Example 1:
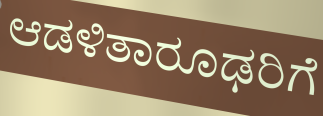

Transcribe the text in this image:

ಆಡಳಿತಾರೂಢರಿಗೆ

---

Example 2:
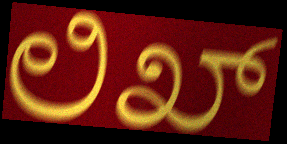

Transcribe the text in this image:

ಲಿಖ್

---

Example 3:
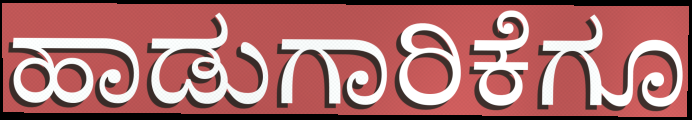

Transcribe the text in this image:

ಹಾಡುಗಾರಿಕೆಗೂ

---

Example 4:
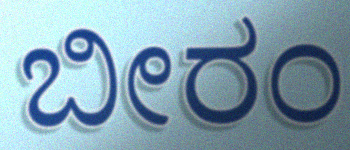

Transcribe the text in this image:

ಬೀರಂ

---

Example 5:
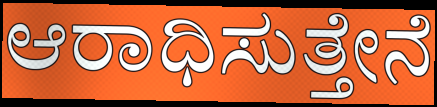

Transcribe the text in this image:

ಆರಾಧಿಸುತ್ತೇನೆ